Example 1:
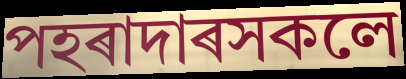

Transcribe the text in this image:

পহৰাদাৰসকলে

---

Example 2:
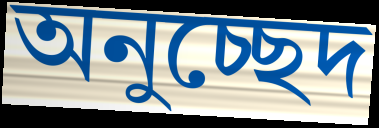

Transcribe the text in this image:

অনুচ্ছেদ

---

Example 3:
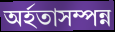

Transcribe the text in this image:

অৰ্হতাসম্পন্ন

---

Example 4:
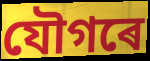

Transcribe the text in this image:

যৌগৰে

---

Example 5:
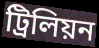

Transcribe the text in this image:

ট্ৰিলিয়ন